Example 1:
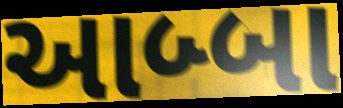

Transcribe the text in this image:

આબ્બા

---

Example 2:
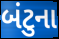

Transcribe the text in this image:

બંટુના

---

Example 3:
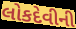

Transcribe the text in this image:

લોકદેવીની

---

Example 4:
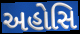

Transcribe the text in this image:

અહોસિ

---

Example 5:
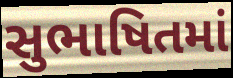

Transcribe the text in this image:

સુભાષિતમાં